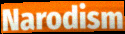
Narodism